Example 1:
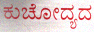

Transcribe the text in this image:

ಕುಚೋದ್ಯದ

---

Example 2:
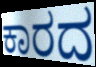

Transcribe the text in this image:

ಕಾರದ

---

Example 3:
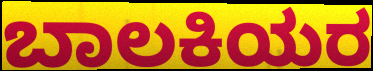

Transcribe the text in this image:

ಬಾಲಕಿಯರ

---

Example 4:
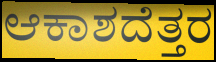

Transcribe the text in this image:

ಆಕಾಶದೆತ್ತರ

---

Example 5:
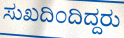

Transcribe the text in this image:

ಸುಖದಿಂದಿದ್ದರು